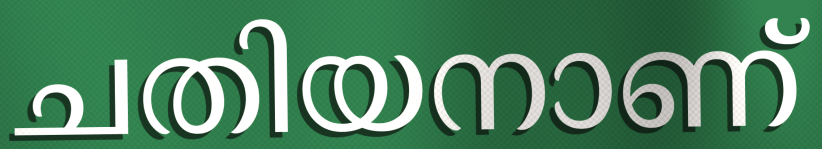
ചതിയനാണ്